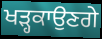
ਖੜ੍ਹਕਾਉਣਗੇ